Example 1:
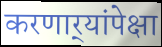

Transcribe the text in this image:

करणार्यांपेक्षा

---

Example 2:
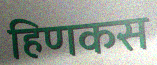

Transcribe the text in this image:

हिणकस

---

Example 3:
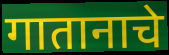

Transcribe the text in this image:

गातानाचे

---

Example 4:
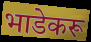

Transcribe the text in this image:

भाडेकरू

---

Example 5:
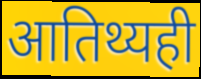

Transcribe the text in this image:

आतिथ्यही